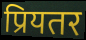
प्रियतर